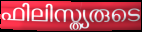
ഫിലിസ്ത്യരുടെ